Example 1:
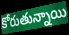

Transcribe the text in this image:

కోరుతున్నాయి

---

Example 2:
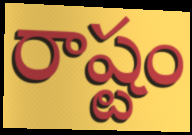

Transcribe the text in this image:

రాష్టం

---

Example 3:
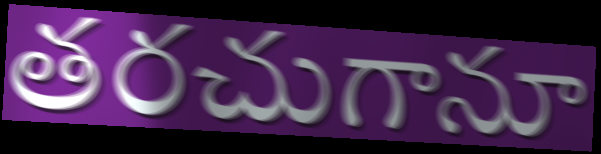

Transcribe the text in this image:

తరచుగానూ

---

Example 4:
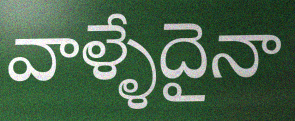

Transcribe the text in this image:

వాళ్ళేదైనా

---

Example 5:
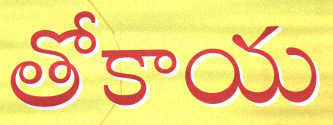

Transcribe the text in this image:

తోకాయ